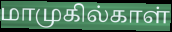
மாமுகில்காள்